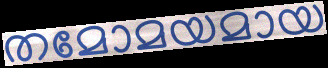
തമോമയമായ